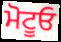
ਮੋਟੂਓ